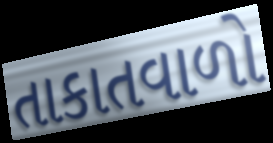
તાકાતવાળો